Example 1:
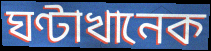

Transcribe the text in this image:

ঘণ্টাখানেক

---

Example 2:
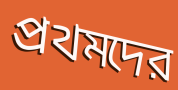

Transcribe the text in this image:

প্রথমদের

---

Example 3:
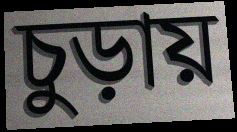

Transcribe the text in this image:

চুড়ায়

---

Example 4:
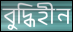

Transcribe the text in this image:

বুদ্ধিহীন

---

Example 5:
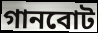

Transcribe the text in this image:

গানবোট